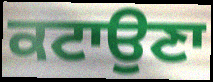
ਕਟਾਉਣਾ